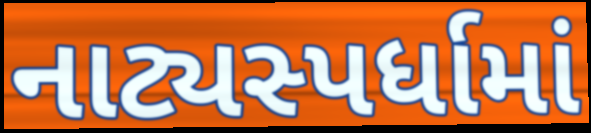
નાટ્યસ્પર્ધામાં